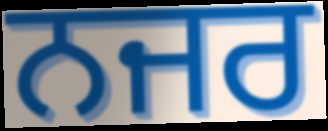
ਨਜਰ